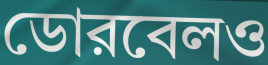
ডোরবেলও